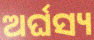
ଅର୍ଘସ୍ୟ